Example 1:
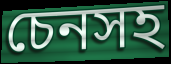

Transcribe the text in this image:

চেনসহ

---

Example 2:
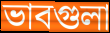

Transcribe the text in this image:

ভাবগুলা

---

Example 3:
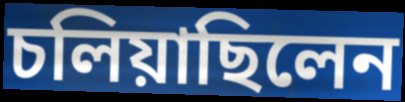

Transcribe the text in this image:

চলিয়াছিলেন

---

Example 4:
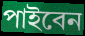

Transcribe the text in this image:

পাইবেন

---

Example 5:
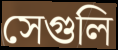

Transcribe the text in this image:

সেগুলি